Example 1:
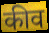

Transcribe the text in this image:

कीव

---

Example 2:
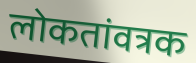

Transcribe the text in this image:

लोकतांवत्रक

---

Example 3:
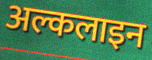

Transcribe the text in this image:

अल्कलाइन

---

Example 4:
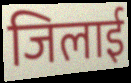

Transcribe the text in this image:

जिलाई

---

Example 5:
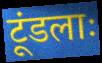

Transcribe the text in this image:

टूंडलाः